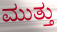
ಮುತ್ತು